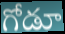
గోడూ